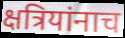
क्षत्रियांनाच